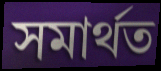
সমাৰ্থত